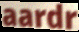
aardr